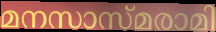
മനസാസ്മരാമി